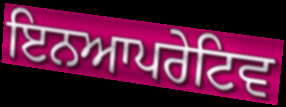
ਇਨਆਪਰੇਟਿਵ